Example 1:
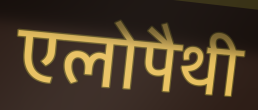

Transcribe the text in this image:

एलोपैथी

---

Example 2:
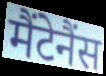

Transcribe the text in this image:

मैंटेनैंस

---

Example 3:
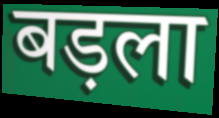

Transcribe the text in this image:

बड़ला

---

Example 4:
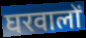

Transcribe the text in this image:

घरवालों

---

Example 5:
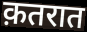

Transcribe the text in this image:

क़तरात